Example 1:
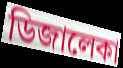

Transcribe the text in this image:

ডিজালেকা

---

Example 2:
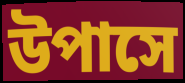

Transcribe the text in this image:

উপাসে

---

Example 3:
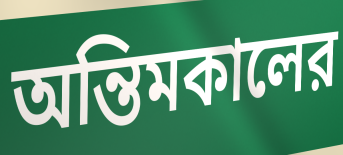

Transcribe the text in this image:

অন্তিমকালের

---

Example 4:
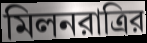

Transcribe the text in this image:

মিলনরাত্রির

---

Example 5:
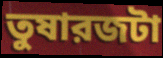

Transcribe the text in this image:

তুষারজটা